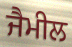
ਜੈਮੀਲ